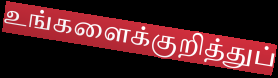
உங்களைக்குறித்துப்